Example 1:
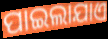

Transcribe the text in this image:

ପାଇଲାଯାଏ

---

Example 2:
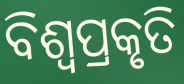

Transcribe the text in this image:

ବିଶ୍ଵପ୍ରକୃତି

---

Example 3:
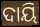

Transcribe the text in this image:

ଦାୟି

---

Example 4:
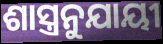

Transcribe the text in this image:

ଶାସ୍ତ୍ରନୁଯାୟୀ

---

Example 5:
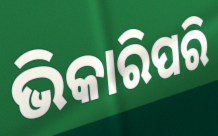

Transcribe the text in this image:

ଭିକାରିପରି